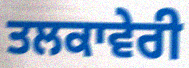
ਤਲਕਾਵੇਰੀ